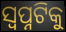
ସ୍ୱପ୍ନଟିକୁ